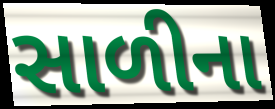
સાળીના